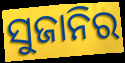
ସୁଜାନିର